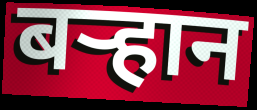
बऱ्हान